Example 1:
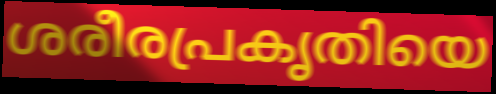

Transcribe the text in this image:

ശരീരപ്രകൃതിയെ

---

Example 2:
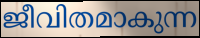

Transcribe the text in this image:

ജീവിതമാകുന്ന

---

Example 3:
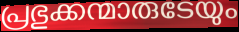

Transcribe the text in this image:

പ്രഭുക്കന്മാരുടേയും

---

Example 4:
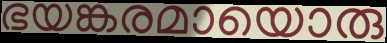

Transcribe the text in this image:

ഭയങ്കരമായൊരു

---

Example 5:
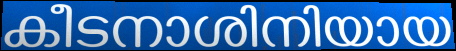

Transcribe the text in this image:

കീടനാശിനിയായ